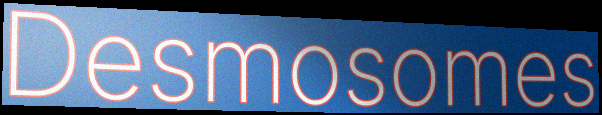
Desmosomes